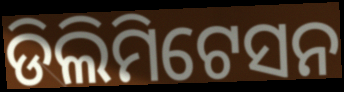
ଡିଲିମିଟେସନ